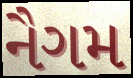
નૈગમ